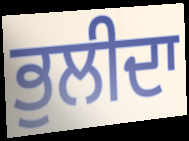
ਭੁਲੀਦਾ